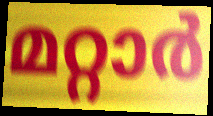
മറ്റാർ